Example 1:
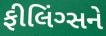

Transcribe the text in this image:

ફીલિંગ્સને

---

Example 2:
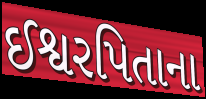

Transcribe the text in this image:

ઈશ્વરપિતાના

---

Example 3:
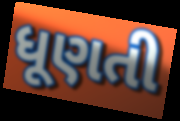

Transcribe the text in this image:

ધૂણતી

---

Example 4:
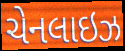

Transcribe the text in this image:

ચેનલાઇઝ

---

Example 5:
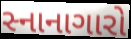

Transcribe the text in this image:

સ્નાનાગારો